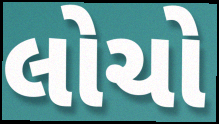
લોચો